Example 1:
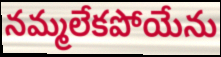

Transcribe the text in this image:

నమ్మలేకపోయేను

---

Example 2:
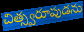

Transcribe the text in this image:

చిత్స్వరూపుడను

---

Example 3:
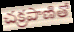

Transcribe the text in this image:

చక్రపాణితో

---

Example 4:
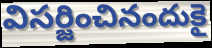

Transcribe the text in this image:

విసర్జించినందుకై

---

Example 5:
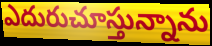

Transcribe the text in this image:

ఎదురుచూస్తున్నాను